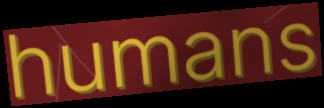
humans